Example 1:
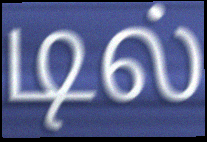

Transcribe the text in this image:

டில்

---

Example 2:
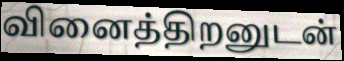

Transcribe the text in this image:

வினைத்திறனுடன்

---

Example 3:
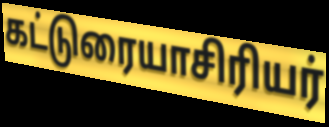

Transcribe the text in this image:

கட்டுரையாசிரியர்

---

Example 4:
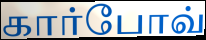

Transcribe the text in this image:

கார்போவ்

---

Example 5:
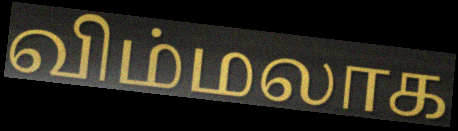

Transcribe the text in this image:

விம்மலாக